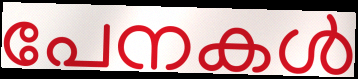
പേനകൾ